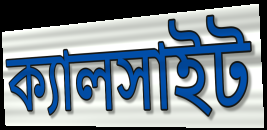
ক্যালসাইট